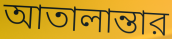
আতালান্তার